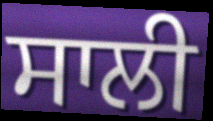
ਸਾਲੀ